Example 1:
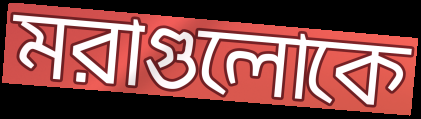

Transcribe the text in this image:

মরাগুলোকে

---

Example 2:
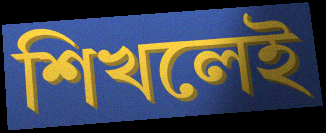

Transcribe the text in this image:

শিখলেই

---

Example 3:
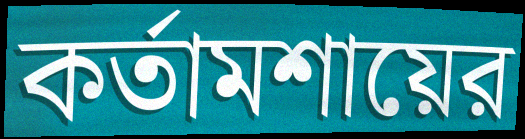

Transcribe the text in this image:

কর্তামশায়ের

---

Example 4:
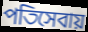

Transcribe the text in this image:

পতিসেবায়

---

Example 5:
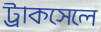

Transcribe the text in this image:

ট্রাকসেলে